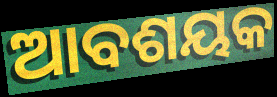
ଆବଶୟକ